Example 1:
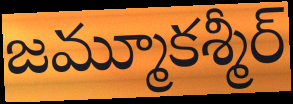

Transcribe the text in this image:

జమ్మూకశ్మీర్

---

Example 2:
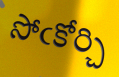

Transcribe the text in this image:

సోఁకోర్చి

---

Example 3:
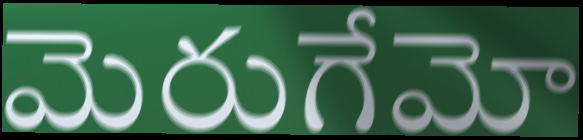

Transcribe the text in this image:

మెరుగేమో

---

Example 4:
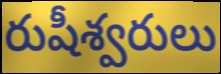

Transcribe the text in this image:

రుషీశ్వరులు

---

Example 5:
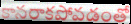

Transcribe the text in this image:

కానరాకపోవడంతో